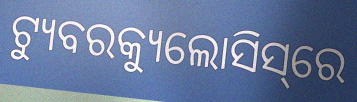
ଟ୍ୟୁବରକ୍ୟୁଲୋସିସ୍‌ରେ